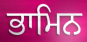
ਭਾਮਿਨ